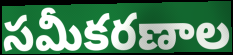
సమీకరణాల